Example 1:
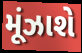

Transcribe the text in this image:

મૂંઝાશે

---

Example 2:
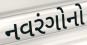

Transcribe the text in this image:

નવરંગોનો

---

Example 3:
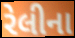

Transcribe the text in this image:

રેલીના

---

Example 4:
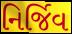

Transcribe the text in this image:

નિર્જિવ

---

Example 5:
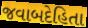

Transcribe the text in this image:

જવાબદેહિતા